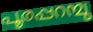
പൂരപ്പറമ്പു